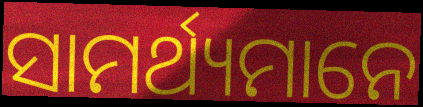
ସାମର୍ଥ୍ୟମାନେ